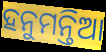
ହନୁମନ୍ତିଆ